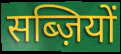
सब्ज़ियों